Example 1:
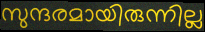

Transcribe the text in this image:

സുന്ദരമായിരുന്നില്ല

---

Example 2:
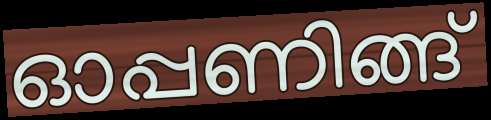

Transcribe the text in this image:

ഓപ്പണിങ്ങ്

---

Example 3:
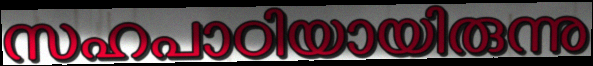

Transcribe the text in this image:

സഹപാഠിയായിരുന്നു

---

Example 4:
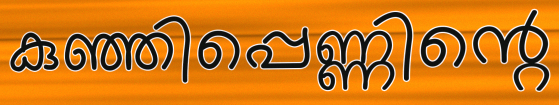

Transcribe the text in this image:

കുഞ്ഞിപ്പെണ്ണിന്റെ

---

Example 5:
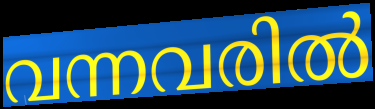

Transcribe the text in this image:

വന്നവരിൽ